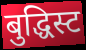
बुद्धिस्ट